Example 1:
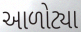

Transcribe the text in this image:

આળોટ્યા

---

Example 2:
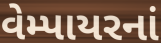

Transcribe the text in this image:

વેમ્પાયરનાં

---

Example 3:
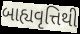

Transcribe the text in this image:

બાહ્યવૃત્તિથી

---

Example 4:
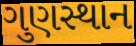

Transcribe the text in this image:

ગુણસ્થાન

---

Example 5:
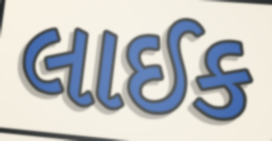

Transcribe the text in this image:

લાઈક